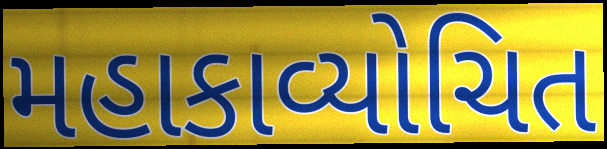
મહાકાવ્યોચિત